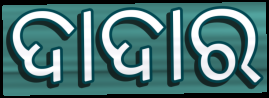
ଦାଦାର